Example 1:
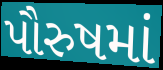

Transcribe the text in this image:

પૌરુષમાં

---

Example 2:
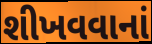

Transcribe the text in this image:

શીખવવાનાં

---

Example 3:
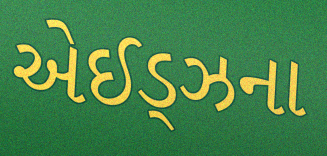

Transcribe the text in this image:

એઈડ્ઝના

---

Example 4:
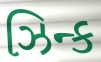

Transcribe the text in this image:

ઝિન્ક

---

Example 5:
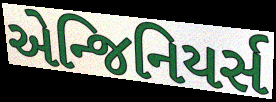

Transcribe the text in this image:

એન્જિનિયર્સ